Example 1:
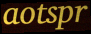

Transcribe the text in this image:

aotspr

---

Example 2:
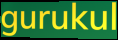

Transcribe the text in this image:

gurukul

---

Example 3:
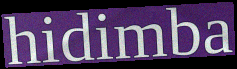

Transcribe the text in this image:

hidimba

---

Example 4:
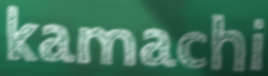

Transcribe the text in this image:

kamachi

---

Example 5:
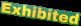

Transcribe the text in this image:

Exhibited